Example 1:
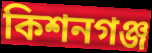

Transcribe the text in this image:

কিশনগঞ্জ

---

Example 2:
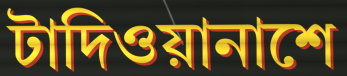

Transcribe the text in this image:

টাদিওয়ানাশে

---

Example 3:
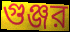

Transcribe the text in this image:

গুঞ্জর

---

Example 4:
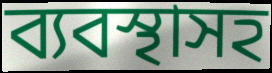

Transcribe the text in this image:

ব্যবস্থাসহ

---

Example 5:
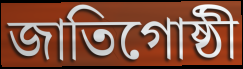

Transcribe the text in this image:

জাতিগোষ্ঠী